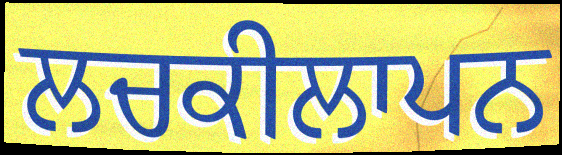
ਲਚਕੀਲਾਪਨ